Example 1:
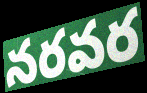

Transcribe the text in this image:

నరవర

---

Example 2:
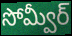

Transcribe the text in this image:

సోమ్వీర్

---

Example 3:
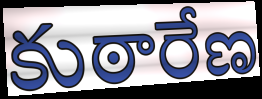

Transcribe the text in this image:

కుఠారేణ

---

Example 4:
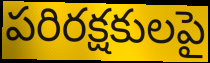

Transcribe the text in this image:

పరిరక్షకులపై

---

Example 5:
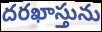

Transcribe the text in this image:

దరఖాస్తును